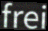
frei